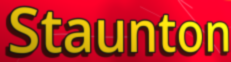
Staunton